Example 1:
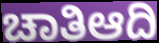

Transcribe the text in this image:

ಚಾತಿಆದಿ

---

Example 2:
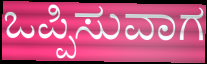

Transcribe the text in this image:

ಒಪ್ಪಿಸುವಾಗ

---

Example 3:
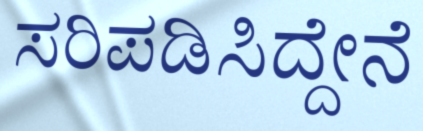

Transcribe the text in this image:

ಸರಿಪಡಿಸಿದ್ದೇನೆ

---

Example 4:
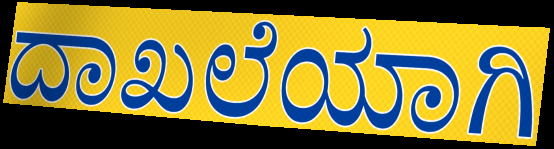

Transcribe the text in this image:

ದಾಖಲೆಯಾಗಿ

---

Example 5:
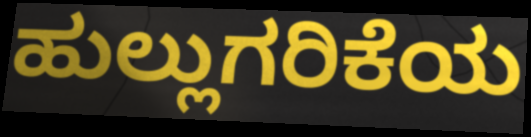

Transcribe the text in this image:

ಹುಲ್ಲುಗರಿಕೆಯ